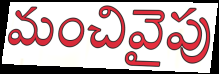
మంచివైపు